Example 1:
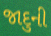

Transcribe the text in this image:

જાદુની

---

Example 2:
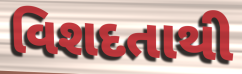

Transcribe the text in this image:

વિશદતાથી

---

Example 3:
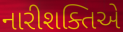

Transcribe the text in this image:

નારીશક્તિએ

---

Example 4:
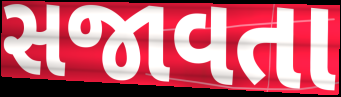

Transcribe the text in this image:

સજાવતા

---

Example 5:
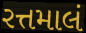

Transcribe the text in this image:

રત્તમાલં